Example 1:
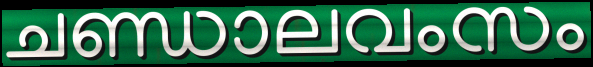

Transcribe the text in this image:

ചണ്ഡാലവംസം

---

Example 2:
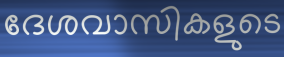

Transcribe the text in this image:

ദേശവാസികളുടെ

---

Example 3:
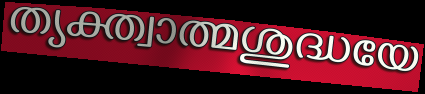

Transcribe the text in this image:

ത്യക്ത്വാത്മശുദ്ധയേ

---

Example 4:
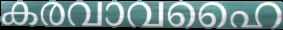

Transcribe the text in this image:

കരവാവഹൈ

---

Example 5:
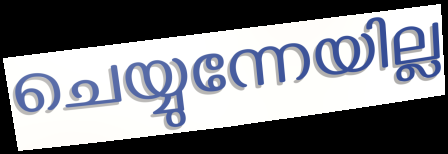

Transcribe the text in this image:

ചെയ്യുന്നേയില്ല